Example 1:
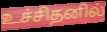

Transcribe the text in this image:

உச்சிதனில்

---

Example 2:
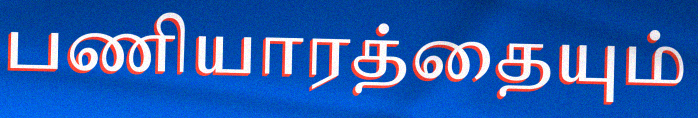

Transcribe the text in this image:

பணியாரத்தையும்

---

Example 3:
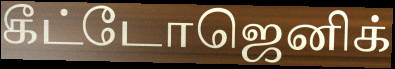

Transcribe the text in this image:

கீட்டோஜெனிக்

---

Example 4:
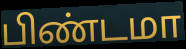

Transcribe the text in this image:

பிண்டமா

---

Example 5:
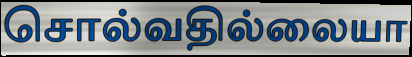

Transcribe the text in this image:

சொல்வதில்லையா